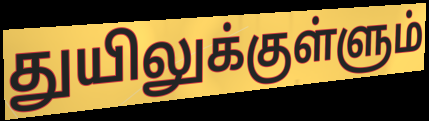
துயிலுக்குள்ளும்